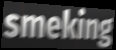
smeking